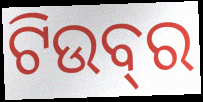
ଟିଉବ୍‍ର